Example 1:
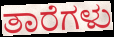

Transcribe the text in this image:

ತಾರೆಗಳು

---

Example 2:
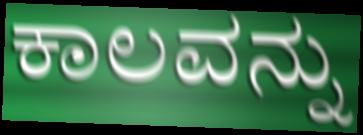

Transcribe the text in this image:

ಕಾಲವನ್ನು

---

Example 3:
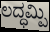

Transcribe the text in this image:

ಲದ್ಧಮ್ಪಿ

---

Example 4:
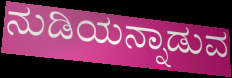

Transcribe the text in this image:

ನುಡಿಯನ್ನಾಡುವ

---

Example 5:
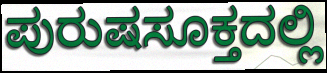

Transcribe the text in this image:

ಪುರುಷಸೂಕ್ತದಲ್ಲಿ